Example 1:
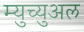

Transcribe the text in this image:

म्युच्युअल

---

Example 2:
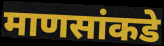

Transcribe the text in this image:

माणसांकडे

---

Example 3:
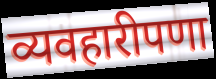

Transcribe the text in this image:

व्यवहारीपणा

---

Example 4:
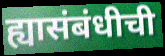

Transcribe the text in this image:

ह्यासंबंधीची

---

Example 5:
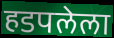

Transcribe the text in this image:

हडपलेला